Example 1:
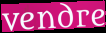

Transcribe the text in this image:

vendre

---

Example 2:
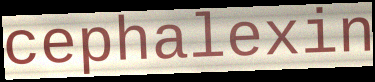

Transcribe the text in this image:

cephalexin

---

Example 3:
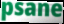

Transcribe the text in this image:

psane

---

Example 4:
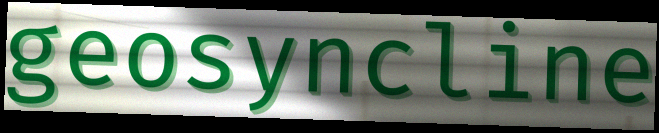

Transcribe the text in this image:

geosyncline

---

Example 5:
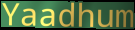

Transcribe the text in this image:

Yaadhum